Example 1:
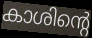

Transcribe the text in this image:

കാശിന്റെ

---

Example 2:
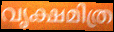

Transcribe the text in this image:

വൃക്ഷമിത്ര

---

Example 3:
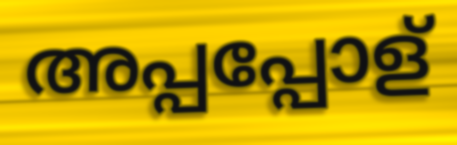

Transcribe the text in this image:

അപ്പപ്പോള്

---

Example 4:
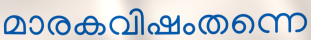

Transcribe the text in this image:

മാരകവിഷംതന്നെ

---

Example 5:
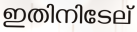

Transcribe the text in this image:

ഇതിനിടേല്